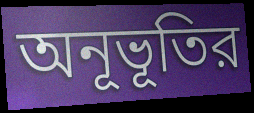
অনূভূতির